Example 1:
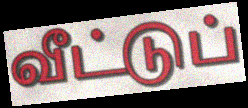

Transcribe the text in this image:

வீட்டுப்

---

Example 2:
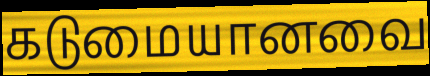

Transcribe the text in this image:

கடுமையானவை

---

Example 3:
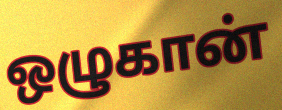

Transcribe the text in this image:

ஒழுகான்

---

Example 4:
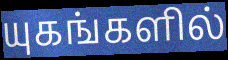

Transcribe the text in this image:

யுகங்களில்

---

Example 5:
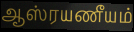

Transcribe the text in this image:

ஆஸ்ரயணீயம்